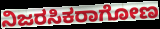
ನಿಜರಸಿಕರಾಗೋಣ